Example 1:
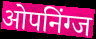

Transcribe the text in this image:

ओपनिंग्ज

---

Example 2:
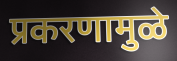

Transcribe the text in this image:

प्रकरणामुळे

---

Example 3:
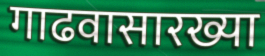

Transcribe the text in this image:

गाढवासारख्या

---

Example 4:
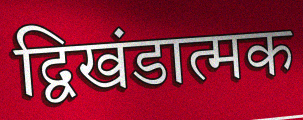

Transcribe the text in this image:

द्विखंडात्मक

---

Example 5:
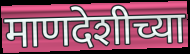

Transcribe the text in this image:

माणदेशीच्या